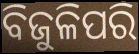
ବିଜୁଳିପରି